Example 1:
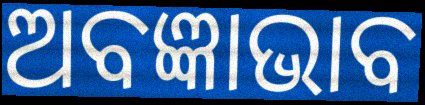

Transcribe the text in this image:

ଅବଜ୍ଞାଭାବ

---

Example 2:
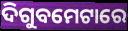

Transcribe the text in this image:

ଦିଗୁବମେଟାରେ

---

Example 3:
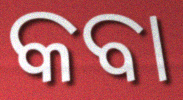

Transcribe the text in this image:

କବା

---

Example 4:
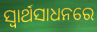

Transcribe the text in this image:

ସ୍ବାର୍ଥସାଧନରେ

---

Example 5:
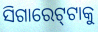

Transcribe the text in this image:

ସିଗାରେଟ୍‍ଟାକୁ